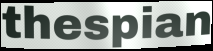
thespian